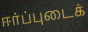
ஈர்ப்புடைக்